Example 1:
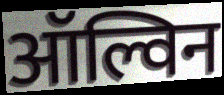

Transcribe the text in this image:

ऑल्विन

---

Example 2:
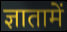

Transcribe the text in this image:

ज्ञातामें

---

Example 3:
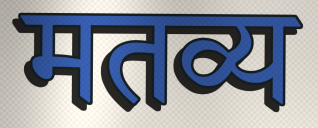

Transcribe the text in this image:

मतव्य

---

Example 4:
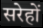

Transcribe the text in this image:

सरेहों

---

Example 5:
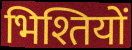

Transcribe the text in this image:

भिश्तियों